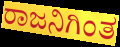
ರಾಜನಿಗಿಂತ